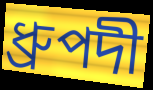
ধ্ৰুপদী